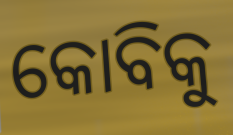
କୋବିକୁ